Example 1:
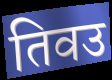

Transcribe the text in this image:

तिवउ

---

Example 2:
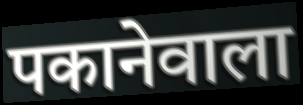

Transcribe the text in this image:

पकानेवाला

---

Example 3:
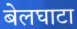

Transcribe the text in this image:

बेलघाटा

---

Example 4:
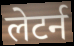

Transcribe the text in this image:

लेटर्न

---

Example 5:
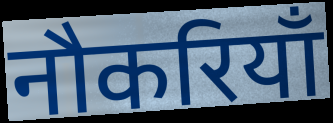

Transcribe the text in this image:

नौकरियाँ